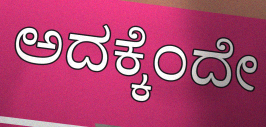
ಅದಕ್ಕೆಂದೇ